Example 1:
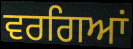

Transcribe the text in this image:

ਵਰਗਿਆਂ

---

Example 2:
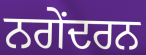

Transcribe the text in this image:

ਨਗੇਂਦਰਨ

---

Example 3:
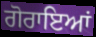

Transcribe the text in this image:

ਗੋਰਾਇਆਂ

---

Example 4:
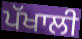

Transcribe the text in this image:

ਪੱਖਾਲੀ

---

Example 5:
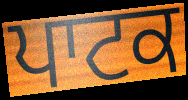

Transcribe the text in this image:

ਪਾਟਕ